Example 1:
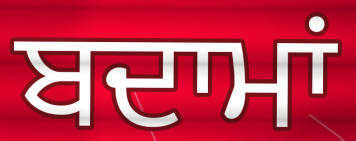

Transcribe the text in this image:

ਬਦਾਮਾਂ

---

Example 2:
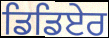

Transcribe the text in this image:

ਡਿਡਿਏਰ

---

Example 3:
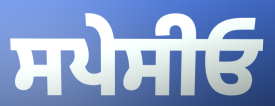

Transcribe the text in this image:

ਸਪੇਸੀਓ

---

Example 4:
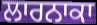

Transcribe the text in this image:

ਲਾਰਨਾਕਾ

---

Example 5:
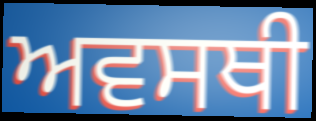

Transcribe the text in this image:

ਅਵਸਥੀ